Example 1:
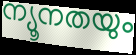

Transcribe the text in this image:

ന്യൂനതയും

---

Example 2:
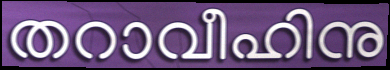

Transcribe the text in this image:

തറാവീഹിനു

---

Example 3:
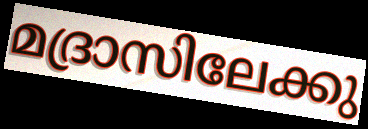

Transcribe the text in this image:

മദ്രാസിലേക്കു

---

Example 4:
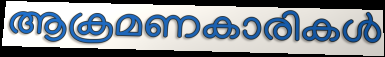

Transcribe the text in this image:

ആക്രമണകാരികൾ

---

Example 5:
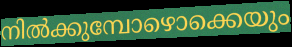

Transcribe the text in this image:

നിൽക്കുമ്പോഴൊക്കെയും